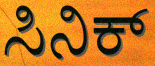
ಸಿನಿಕ್